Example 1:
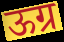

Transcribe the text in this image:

ऊग्र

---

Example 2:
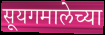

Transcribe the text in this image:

सूयगमालेच्या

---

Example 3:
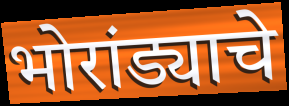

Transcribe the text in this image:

भोरांड्याचे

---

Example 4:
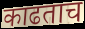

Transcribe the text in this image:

काढताच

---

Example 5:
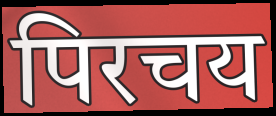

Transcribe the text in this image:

पिरचय